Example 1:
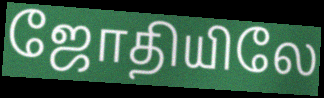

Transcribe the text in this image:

ஜோதியிலே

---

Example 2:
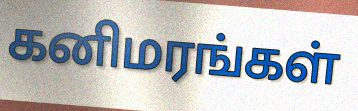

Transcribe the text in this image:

கனிமரங்கள்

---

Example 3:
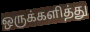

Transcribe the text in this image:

ஒருக்களித்து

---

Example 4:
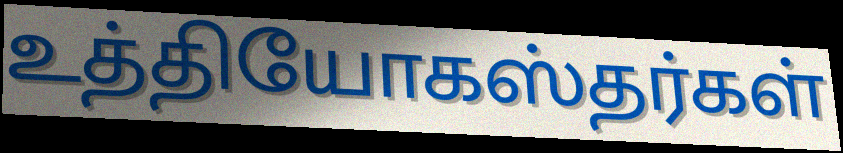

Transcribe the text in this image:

உத்தியோகஸ்தர்கள்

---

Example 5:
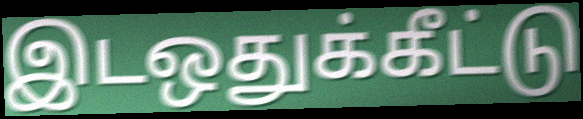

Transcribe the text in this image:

இடஒதுக்கீட்டு